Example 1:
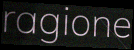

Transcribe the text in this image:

ragione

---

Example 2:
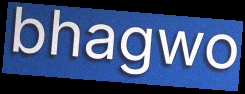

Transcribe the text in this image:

bhagwo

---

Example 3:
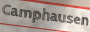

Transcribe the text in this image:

Camphausen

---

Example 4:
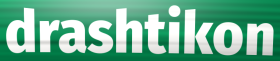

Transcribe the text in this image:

drashtikon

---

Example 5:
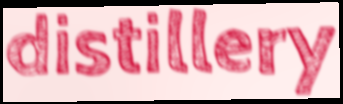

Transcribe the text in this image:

distillery